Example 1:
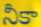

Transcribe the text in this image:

నీకా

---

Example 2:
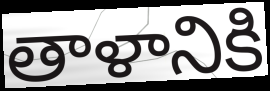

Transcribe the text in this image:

తాళానికి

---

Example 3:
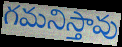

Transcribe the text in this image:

గమనిస్తావు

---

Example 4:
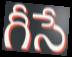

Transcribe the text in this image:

గీసే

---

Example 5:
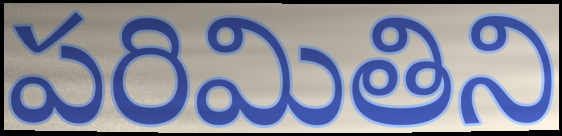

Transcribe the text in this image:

పరిమితిని